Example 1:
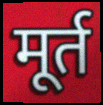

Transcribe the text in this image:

मूर्त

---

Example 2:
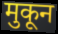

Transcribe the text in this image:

मुकून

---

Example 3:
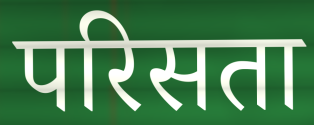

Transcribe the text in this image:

परिसता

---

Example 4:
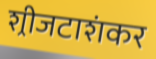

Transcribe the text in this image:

श्रीजटाशंकर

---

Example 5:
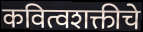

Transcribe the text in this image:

कवित्वशक्तीचे